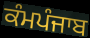
ਕੰਮਪੰਜਾਬ